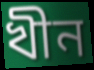
খীন